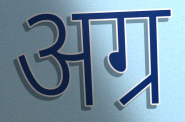
अग्र